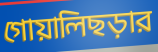
গোয়ালিছড়ার